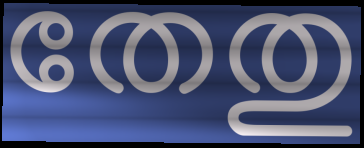
തേതു